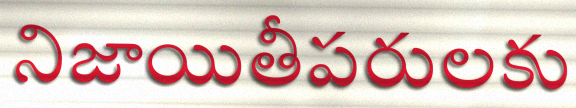
నిజాయితీపరులకు